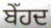
ਬੇੱਹਦ